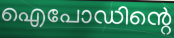
ഐപോഡിന്റെ